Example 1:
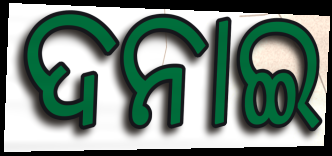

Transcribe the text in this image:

ଦନାଇ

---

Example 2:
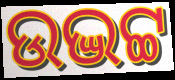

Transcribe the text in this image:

ଉଦ୍ଭଟ୍ଟ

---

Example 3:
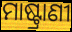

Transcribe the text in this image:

ମାଷ୍ଟ୍ରାଣୀ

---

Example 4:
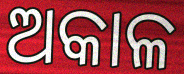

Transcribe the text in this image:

ଅକାଳ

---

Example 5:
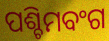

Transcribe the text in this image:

ପଶ୍ଚିମବଂଗ